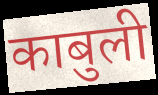
काबुली